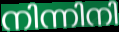
നിന്നിനി